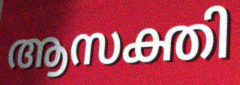
ആസക്തി